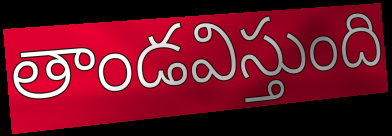
తాండవిస్తుంది